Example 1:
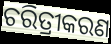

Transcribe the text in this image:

ଚରିତ୍ରୀକରଣ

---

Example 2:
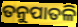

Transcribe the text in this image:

ତନୁପାତଳି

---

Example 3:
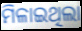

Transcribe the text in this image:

ମିଳାଇଥିଲା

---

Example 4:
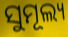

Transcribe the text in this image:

ସୁମୂଲ୍ୟ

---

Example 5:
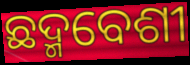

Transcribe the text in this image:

ଛଦ୍ମବେଶୀ